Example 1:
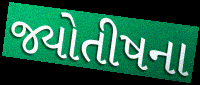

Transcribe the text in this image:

જ્યોતીષના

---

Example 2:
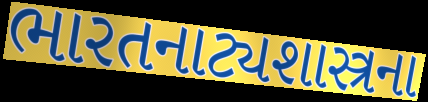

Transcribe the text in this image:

ભારતનાટ્યશાસ્ત્રના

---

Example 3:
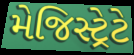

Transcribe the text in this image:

મેજિસ્ટ્રેટે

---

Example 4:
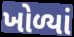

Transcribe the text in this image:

ખોળ્યાં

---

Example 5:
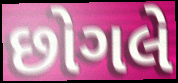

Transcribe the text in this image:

છોગલે